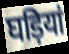
घड़ियां